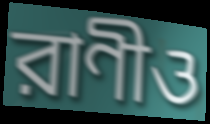
রাণীও